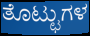
ತೊಟ್ಟುಗಳ